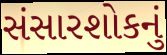
સંસારશોકનું